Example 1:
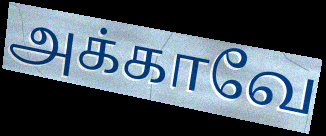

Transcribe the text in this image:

அக்காவே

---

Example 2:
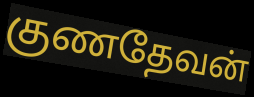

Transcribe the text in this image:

குணதேவன்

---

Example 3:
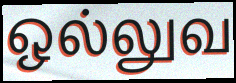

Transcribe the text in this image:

ஒல்லுவ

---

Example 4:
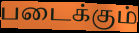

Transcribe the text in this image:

படைக்கும்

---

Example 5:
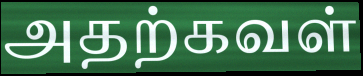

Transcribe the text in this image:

அதற்கவள்